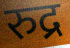
रुद्र